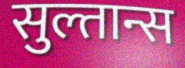
सुल्तान्स